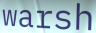
warsh